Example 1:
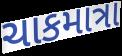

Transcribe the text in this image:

ચાકમાત્રા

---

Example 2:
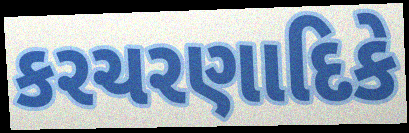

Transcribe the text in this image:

કરચરણાદિકે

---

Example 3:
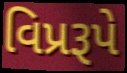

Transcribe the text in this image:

વિપ્રરૂપે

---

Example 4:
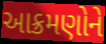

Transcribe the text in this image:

આક્રમણોને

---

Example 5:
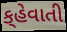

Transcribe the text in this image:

ક્‌હેવાતી